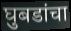
घुबडांचा